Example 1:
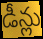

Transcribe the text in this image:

డీన్లు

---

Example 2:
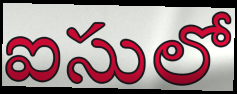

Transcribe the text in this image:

ఐసులో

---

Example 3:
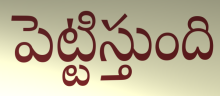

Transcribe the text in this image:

పెట్టిస్తుంది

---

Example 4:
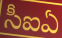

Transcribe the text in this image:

సీఐఏ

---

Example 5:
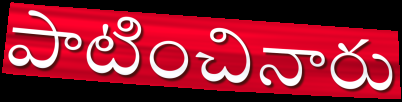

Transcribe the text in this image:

పాటించినారు